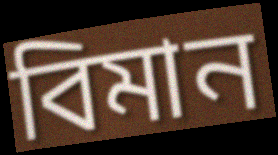
বিমান